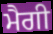
ਮੈਗੀ